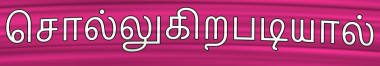
சொல்லுகிறபடியால்